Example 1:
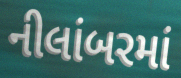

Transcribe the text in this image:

નીલાંબરમાં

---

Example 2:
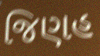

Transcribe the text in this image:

જિણહ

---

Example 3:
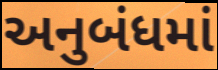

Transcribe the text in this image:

અનુબંધમાં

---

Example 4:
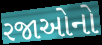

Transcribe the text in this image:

રજાઓનો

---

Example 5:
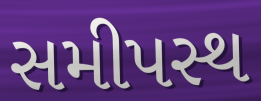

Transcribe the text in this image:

સમીપસ્થ